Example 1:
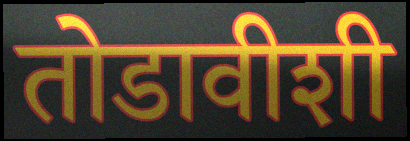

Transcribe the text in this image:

तोडावीशी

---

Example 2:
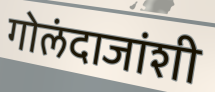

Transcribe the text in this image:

गोलंदाजांशी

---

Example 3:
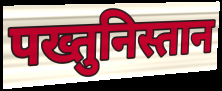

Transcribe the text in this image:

पख्तुनिस्तान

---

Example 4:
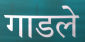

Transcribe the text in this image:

गाडले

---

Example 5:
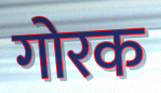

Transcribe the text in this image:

गोरक